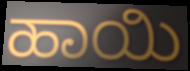
ಹಾಯಿ